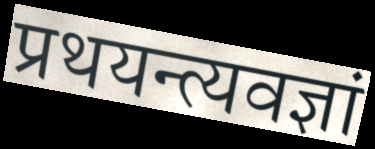
प्रथयन्त्यवज्ञां